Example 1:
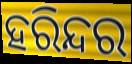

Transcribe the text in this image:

ହରିନ୍ଦର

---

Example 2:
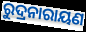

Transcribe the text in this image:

ରୁଦ୍ରନାରାୟଣ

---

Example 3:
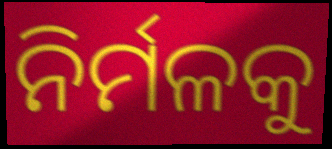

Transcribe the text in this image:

ନିର୍ମଳକୁ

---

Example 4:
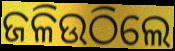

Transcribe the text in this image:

ଜଳିଉଠିଲେ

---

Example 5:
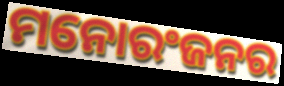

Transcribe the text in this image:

ମନୋରଂଜନର